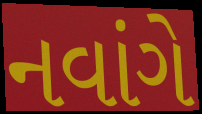
નવાંગે